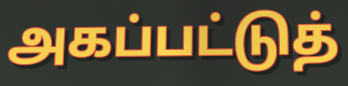
அகப்பட்டுத்